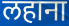
लहाना